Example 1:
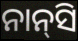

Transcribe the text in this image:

ନାନ୍‌ସି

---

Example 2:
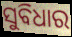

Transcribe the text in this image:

ସୁବିଧାର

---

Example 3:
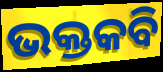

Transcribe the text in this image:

ଭକ୍ତକବି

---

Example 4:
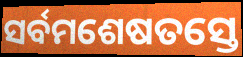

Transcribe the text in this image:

ସର୍ବମଶେଷତସ୍ତେ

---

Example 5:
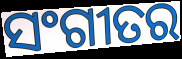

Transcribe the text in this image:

ସଂଗୀତର